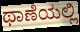
ಥಾಣೆಯಲ್ಲಿ